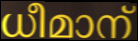
ധീമാന്